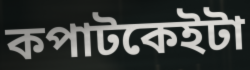
কপাটকেইটা